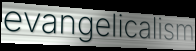
evangelicalism